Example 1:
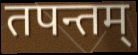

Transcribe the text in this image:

तपन्तम्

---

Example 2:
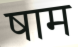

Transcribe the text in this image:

षाम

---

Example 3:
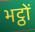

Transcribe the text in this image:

भट्ठों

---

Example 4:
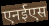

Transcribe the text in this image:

एनईएस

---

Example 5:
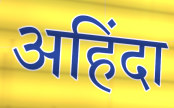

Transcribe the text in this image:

अहिंदा